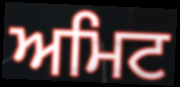
ਅਮਿਟ